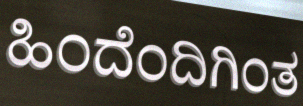
ಹಿಂದೆಂದಿಗಿಂತ